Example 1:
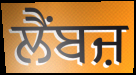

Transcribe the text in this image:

ਲੈਂਬਜ਼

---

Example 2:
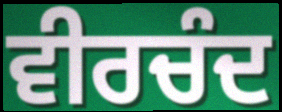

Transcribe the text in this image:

ਵੀਰਚੰਦ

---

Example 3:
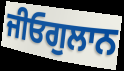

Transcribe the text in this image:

ਜੀਓਗੁਲਾਨ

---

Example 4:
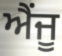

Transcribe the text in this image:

ਐਂਜੂ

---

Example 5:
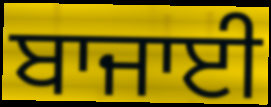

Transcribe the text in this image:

ਬਾਜਾਈ